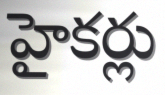
హైకర్లు